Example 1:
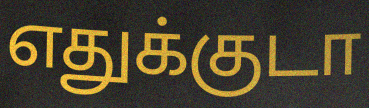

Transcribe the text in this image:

எதுக்குடா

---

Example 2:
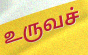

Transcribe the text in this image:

உருவச்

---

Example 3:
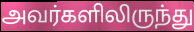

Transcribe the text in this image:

அவர்களிலிருந்து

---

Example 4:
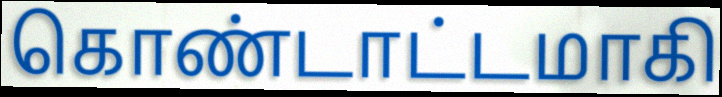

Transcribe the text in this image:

கொண்டாட்டமாகி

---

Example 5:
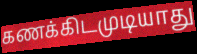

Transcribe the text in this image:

கணக்கிடமுடியாது